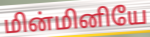
மின்மினியே